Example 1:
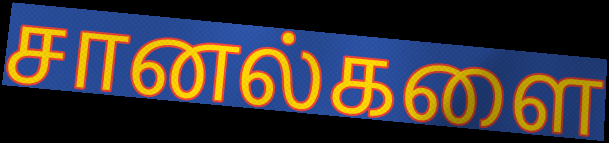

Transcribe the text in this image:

சானல்களை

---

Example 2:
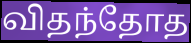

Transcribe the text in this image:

விதந்தோத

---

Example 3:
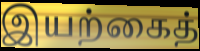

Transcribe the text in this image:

இயற்கைத்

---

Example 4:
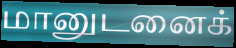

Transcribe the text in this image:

மானுடனைக்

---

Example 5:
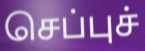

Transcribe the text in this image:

செப்புச்